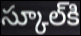
స్కూల్‌కి